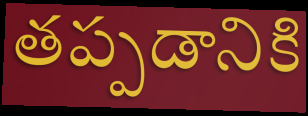
తప్పడానికి